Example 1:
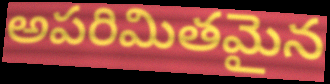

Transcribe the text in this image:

అపరిమితమైన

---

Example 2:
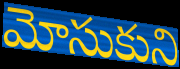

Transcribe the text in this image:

మోసుకుని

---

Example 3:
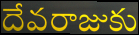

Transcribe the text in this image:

దేవరాజుకు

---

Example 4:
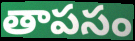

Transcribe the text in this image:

తాపసం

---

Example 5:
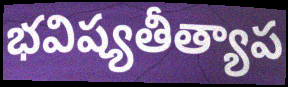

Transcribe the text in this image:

భవిష్యతీత్యాప